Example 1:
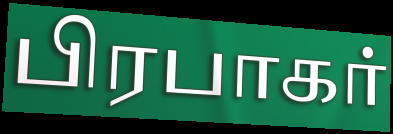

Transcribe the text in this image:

பிரபாகர்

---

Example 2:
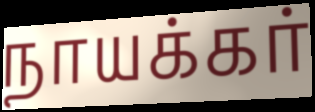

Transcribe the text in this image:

நாயக்கர்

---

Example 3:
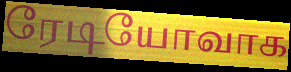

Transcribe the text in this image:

ரேடியோவாக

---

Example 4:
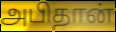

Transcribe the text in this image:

அபிதான்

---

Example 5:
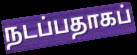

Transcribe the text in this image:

நடப்பதாகப்